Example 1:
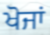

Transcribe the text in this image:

ਖੋਜਾਂ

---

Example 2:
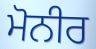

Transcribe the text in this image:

ਮੋਨੀਰ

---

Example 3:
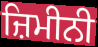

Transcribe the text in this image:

ਜ਼ਿਮੀਨੀ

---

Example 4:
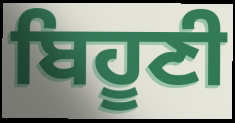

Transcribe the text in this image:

ਬਿਹੂਣੀ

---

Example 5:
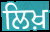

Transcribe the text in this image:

ਲਿਖ਼